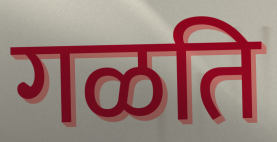
गळति